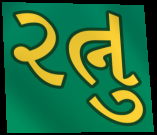
રત્નુ